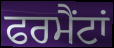
ਫਰਮੈਂਟਾਂ